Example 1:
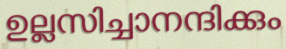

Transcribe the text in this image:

ഉല്ലസിച്ചാനന്ദിക്കും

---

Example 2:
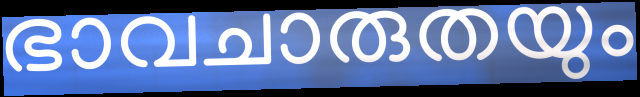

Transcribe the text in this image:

ഭാവചാരുതയും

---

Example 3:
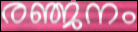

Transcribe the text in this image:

രഞ്ജനം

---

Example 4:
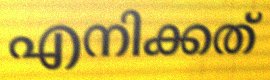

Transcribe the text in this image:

എനിക്കത്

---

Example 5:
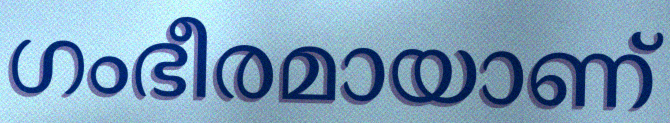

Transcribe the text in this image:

ഗംഭീരമായാണ്